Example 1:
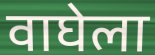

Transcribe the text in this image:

वाघेला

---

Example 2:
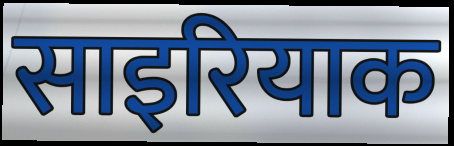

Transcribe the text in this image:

साइरियाक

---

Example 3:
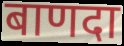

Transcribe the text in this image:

बाणदा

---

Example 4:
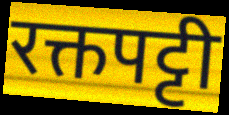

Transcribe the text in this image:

रक्तपट्टी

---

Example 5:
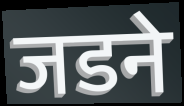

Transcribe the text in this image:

जडने